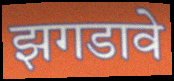
झगडावे